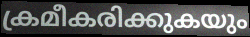
ക്രമീകരിക്കുകയും